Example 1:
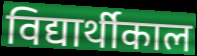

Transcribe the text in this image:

विद्यार्थीकाल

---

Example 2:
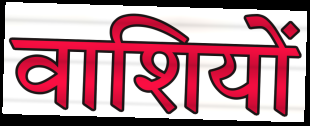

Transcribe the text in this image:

वाशियों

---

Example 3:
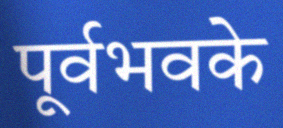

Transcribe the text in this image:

पूर्वभवके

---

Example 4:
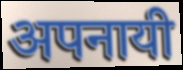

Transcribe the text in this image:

अपनायी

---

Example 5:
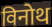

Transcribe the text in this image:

विनोथ